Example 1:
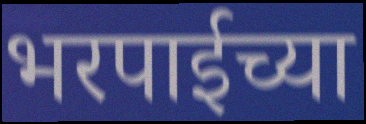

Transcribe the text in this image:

भरपाईच्या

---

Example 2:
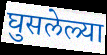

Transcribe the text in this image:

घुसलेल्या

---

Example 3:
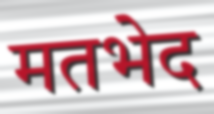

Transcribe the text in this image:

मतभेद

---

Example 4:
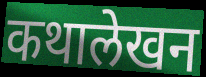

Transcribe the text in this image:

कथालेखन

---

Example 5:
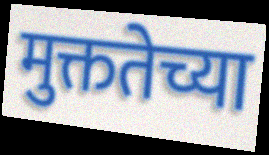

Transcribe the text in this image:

मुक्ततेच्या